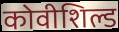
कोवीशिल्ड